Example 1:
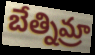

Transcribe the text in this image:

బేత్నిమ్రా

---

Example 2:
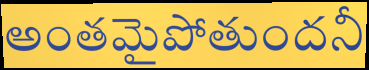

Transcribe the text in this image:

అంతమైపోతుందనీ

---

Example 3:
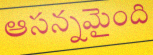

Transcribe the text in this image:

ఆసన్నమైంది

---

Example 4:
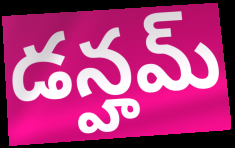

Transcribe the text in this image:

డన్హమ్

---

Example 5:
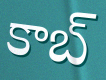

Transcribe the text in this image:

కాబ్